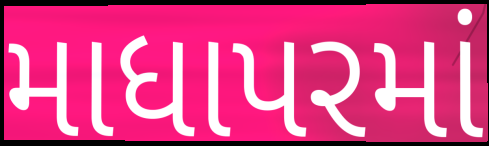
માધાપરમાં